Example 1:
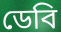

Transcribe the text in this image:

ডেবি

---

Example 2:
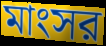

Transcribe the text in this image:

মাংসর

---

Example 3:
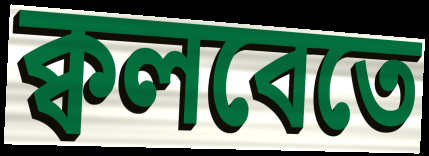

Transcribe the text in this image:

ক্বলবেতে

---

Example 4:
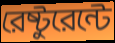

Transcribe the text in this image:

রেষ্টুরেন্টে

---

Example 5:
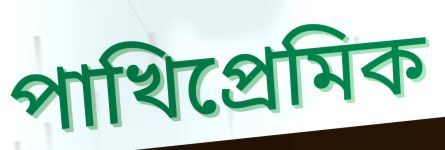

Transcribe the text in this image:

পাখিপ্রেমিক